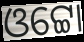
ଓଟ୍ଟୋ